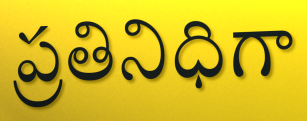
ప్రతినిధిగా